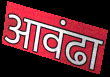
आवंढा